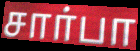
சார்பா